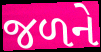
જળને